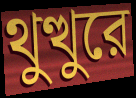
থুত্থুরে